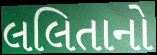
લલિતાનો